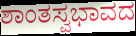
ಶಾಂತಸ್ವಭಾವದ